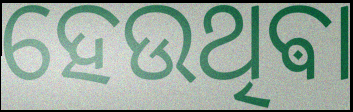
ହେଉଥିଵା